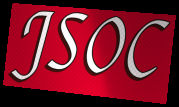
JSOC